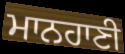
ਮਾਨਹਾਣੀ